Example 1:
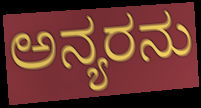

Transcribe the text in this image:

ಅನ್ಯರನು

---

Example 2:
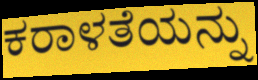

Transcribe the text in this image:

ಕರಾಳತೆಯನ್ನು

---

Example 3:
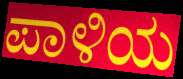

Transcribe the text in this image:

ಪಾಳಿಯ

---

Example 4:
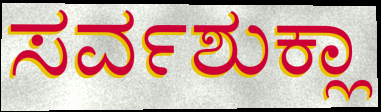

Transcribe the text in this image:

ಸರ್ವಶುಕ್ಲಾ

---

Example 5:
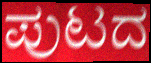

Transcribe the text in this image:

ಪುಟದ